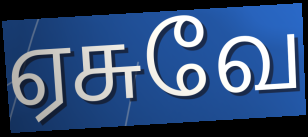
ஏசுவே